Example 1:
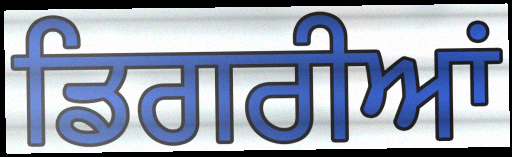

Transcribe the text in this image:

ਡਿਗਰੀਆਂ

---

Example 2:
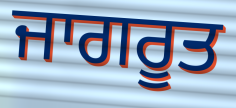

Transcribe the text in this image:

ਜਾਗਰੂਤ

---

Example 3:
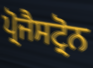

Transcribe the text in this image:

ਪ੍ਰੋਜੈਸਟ੍ਰੋਨ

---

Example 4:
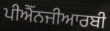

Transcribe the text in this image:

ਪੀਐੱਨਜੀਆਰਬੀ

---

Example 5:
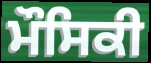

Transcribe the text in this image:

ਮੌਸਿਕੀ